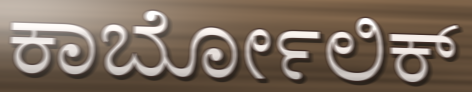
ಕಾರ್ಬೋಲಿಕ್